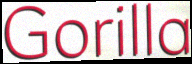
Gorilla